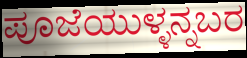
ಪೂಜೆಯುಳ್ಳನ್ನಬರ